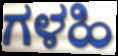
ಗಳಹಿ